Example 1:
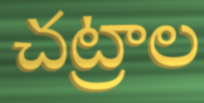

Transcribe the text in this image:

చట్రాల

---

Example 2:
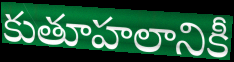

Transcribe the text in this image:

కుతూహలానికీ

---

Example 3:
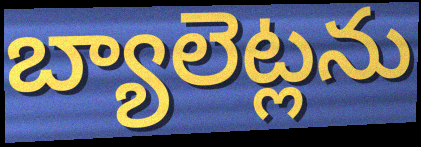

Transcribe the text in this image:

బ్యాలెట్లను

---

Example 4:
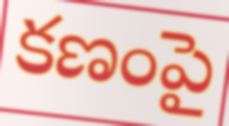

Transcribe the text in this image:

కణంపై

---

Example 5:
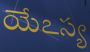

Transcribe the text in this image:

యేఽస్య